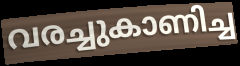
വരച്ചുകാണിച്ച